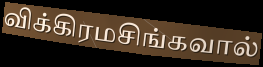
விக்கிரமசிங்கவால்